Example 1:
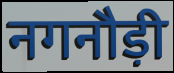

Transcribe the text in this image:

नगनौड़ी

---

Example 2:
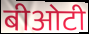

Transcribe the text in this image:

बीओटी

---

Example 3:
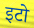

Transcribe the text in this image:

इटो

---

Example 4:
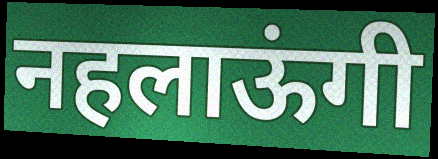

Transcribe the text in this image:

नहलाऊंगी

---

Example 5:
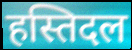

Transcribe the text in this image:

हस्तिदल